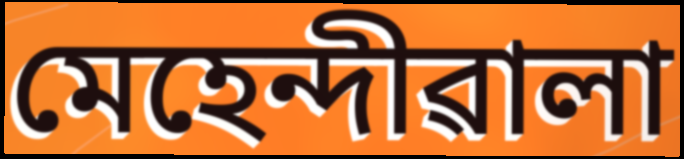
মেহেন্দীৱালা